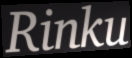
Rinku